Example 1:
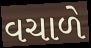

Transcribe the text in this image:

વચાળે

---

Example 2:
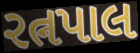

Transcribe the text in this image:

રત્નપાલ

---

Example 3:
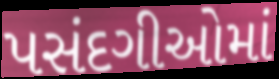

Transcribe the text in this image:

પસંદગીઓમાં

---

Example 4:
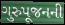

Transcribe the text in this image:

ગુરુપૂજનની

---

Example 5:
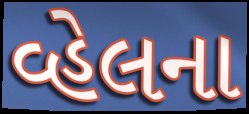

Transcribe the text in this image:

વ્હેલના